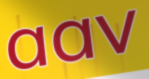
aav